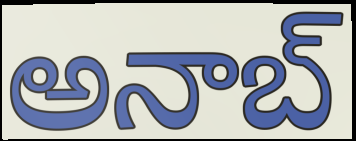
అనాబ్